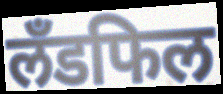
लँडफिल